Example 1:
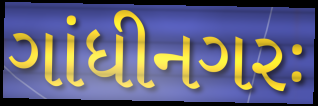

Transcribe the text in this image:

ગાંધીનગરઃ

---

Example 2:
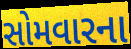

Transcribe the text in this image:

સોમવારના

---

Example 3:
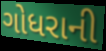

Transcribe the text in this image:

ગોધરાની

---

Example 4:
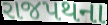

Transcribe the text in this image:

રાજપથના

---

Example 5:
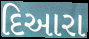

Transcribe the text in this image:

દિઆરા